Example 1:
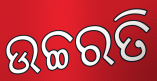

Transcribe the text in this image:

ଉଚ୍ଚରତି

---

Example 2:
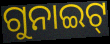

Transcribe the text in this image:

ଗୁନାଇଟ୍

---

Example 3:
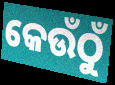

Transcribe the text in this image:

କେଉଁଠୁଁ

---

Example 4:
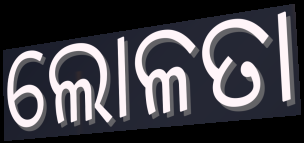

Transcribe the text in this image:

ଲୋଳତା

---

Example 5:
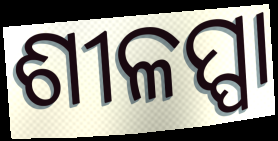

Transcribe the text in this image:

ଶୀଳପ୍ପା